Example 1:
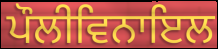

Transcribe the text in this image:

ਪੌਲੀਵਿਨਾਇਲ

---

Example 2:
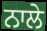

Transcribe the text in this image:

ਨਾਲੇ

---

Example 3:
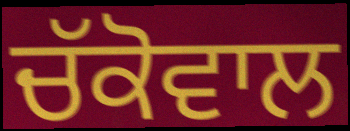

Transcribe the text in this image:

ਚੱਕੋਵਾਲ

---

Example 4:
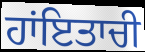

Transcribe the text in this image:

ਹਾਂਇਤਾਚੀ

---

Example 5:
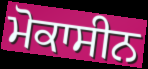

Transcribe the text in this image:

ਮੋਕਾਸੀਨ